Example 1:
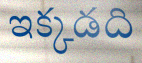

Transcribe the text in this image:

ఇక్కడది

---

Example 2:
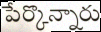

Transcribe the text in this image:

పేర్కొన్నారు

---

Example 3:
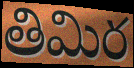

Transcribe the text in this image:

తిమిర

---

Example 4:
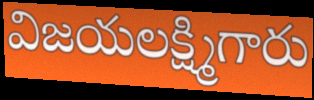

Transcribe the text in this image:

విజయలక్ష్మిగారు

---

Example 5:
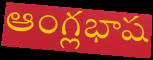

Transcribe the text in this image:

ఆంగ్లభాష